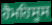
ਹੈਮਹਿਸੂਸ